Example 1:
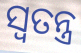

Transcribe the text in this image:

ସ୍ୱତନ୍ତ୍ର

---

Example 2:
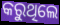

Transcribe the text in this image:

କରୁଥିଲେ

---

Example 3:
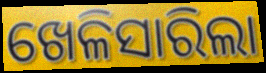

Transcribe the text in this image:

ଖେଳିସାରିଲା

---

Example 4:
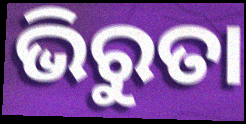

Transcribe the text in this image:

ଭିରୁତା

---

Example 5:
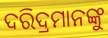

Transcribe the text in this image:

ଦରିଦ୍ରମାନଙ୍କୁ